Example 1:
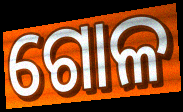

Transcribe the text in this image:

ଗୋଳ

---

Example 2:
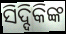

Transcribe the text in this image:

ସିଦ୍ଦିକିଙ୍କ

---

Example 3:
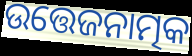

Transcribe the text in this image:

ଉତ୍ତେଜନାତ୍ମକ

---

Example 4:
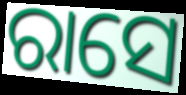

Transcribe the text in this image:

ରାସେ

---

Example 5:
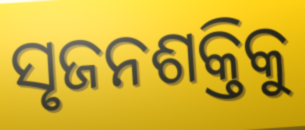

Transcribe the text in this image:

ସୃଜନଶକ୍ତିକୁ